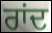
ਰਾਂਦ